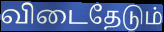
விடைதேடும்